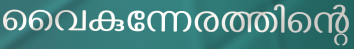
വൈകുന്നേരത്തിന്റെ